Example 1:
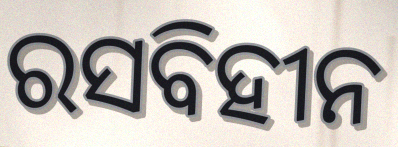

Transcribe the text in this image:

ରସବିହୀନ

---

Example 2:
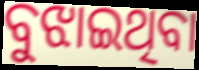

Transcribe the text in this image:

ବୁଝାଇଥିବା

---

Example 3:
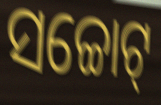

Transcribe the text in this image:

ସଚ୍ଚୋଟ୍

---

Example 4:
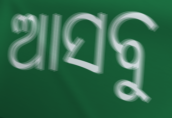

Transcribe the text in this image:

ଆସବୁ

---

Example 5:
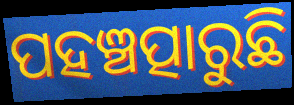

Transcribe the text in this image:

ପହଞ୍ଚତ୍ପାରୁଛି